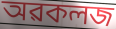
অৱকলজ